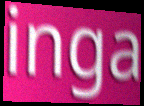
inga